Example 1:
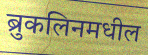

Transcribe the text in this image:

ब्रुकलिनमधील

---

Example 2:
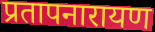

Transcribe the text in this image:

प्रतापनारायण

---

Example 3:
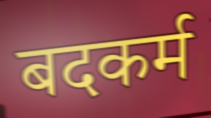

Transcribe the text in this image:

बदकर्म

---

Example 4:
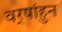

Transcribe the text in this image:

वर्षांहुन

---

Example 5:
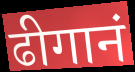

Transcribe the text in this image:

ढीगानं